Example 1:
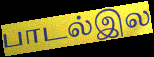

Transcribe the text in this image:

பாடல்இல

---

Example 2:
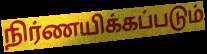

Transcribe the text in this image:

நிர்ணயிக்கப்படும்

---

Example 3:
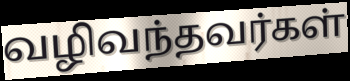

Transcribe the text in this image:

வழிவந்தவர்கள்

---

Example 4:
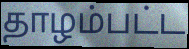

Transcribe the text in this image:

தாழம்பட்ட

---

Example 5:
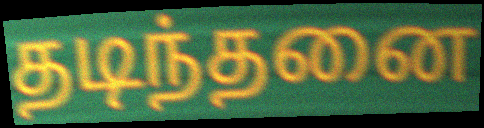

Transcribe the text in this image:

தடிந்தனை